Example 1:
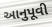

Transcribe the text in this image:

આનુપૂવી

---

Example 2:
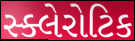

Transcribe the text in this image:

સ્ક્લેરોટિક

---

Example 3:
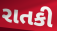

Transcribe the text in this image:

રાતકી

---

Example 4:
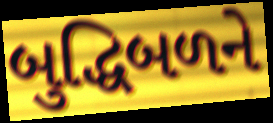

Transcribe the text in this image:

બુદ્ધિબળને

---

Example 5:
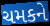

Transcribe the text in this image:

ચમકને